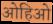
ओहिओ